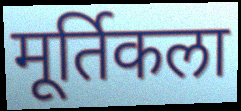
मूर्तिकला